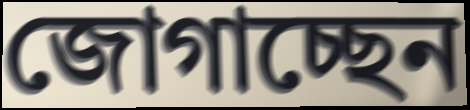
জোগাচ্ছেন